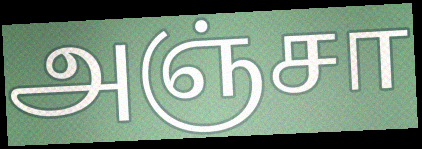
அஞ்சா